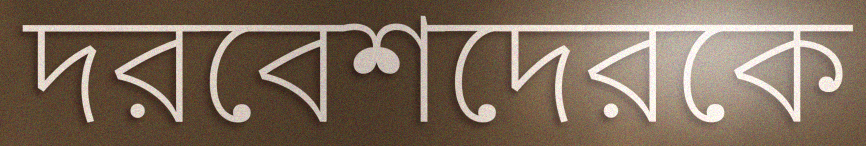
দরবেশদেরকে